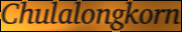
Chulalongkorn